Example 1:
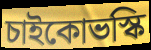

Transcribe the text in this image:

চাইকোভস্কি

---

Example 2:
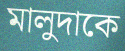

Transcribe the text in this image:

মালুদাকে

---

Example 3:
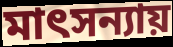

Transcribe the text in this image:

মাৎসন্যায়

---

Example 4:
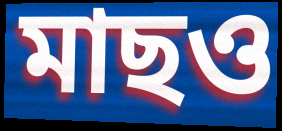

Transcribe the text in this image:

মাছও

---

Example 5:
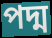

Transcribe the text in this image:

পদ্ম